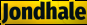
Jondhale